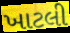
ખાટલી